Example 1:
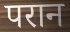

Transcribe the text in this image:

परान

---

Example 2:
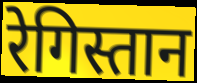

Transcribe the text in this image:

रेगिस्तान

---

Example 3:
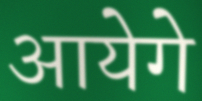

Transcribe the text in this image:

आयेगे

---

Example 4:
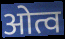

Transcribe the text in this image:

ओत्व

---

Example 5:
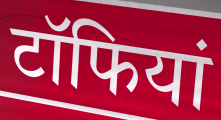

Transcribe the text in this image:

टॉफियां